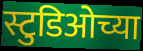
स्टुडिओच्या